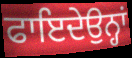
ਫਾਇਦੇਉਨ੍ਹਾਂ